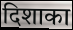
दिशाका